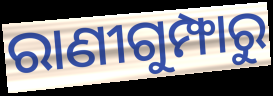
ରାଣୀଗୁମ୍ଫାରୁ